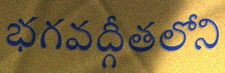
భగవద్గీతలోని